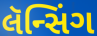
લૅન્સિંગ